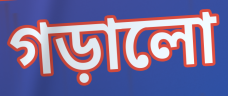
গড়ালো